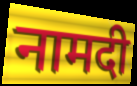
नामदी